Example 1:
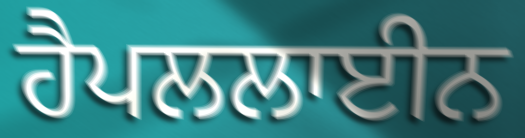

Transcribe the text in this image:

ਹੈਪਲਲਾਈਨ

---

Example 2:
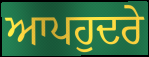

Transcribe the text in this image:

ਆਪਹੁਦਰੇ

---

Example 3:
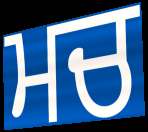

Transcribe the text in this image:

ਮਚ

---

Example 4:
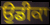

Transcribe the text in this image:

ਉਡੀਕਾ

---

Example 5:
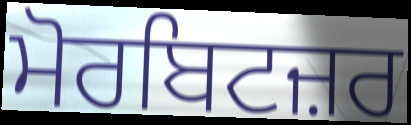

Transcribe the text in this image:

ਮੋਰਬਿਟਜ਼ਰ